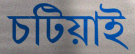
চটিয়াই